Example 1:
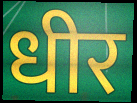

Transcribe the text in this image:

धीर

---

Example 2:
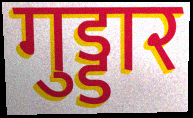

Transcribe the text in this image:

गुड्डार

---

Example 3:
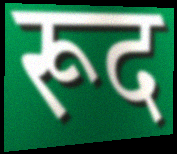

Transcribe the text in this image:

रूद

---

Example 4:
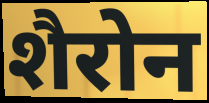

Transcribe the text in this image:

शैरोन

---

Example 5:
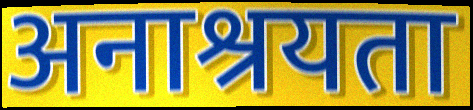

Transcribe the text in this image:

अनाश्रयता